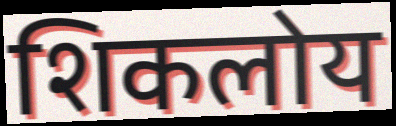
शिकलोय